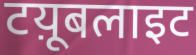
टय़ूबलाइट